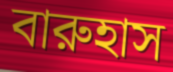
বারুহাস